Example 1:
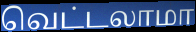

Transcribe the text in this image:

வெட்டலாமா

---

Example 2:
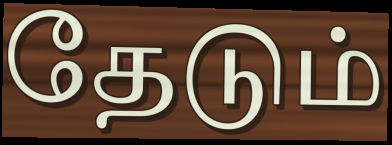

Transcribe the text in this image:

தேடும்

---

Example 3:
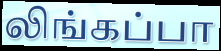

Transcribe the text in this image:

லிங்கப்பா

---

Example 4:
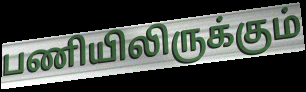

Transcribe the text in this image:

பணியிலிருக்கும்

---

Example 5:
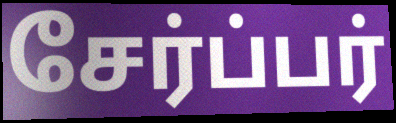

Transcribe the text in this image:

சேர்ப்பர்